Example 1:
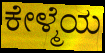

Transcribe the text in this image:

ಕೇಳ್ಮೆಯ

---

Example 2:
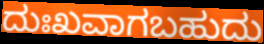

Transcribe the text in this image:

ದುಃಖವಾಗಬಹುದು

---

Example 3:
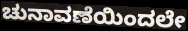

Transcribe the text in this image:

ಚುನಾವಣೆಯಿಂದಲೇ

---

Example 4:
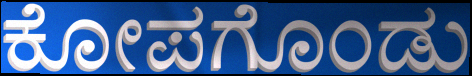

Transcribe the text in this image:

ಕೋಪಗೊಂಡು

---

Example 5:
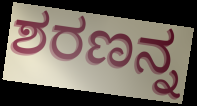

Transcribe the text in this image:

ಶರಣನ್ನ